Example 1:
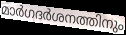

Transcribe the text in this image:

മാർഗദർശനത്തിനും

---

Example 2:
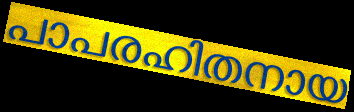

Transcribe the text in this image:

പാപരഹിതനായ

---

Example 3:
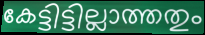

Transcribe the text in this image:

കേട്ടിട്ടില്ലാത്തതും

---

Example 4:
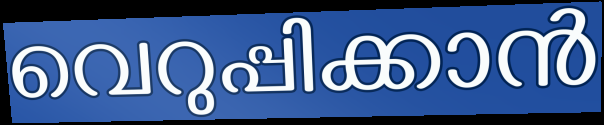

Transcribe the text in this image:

വെറുപ്പിക്കാൻ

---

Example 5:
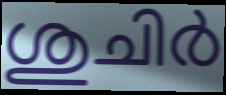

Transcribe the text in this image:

ശുചിർ